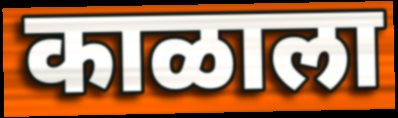
काळाला